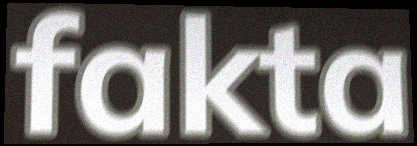
fakta